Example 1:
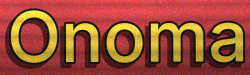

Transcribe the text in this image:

Onoma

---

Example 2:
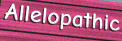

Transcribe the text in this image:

Allelopathic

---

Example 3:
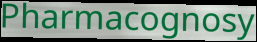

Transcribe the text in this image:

Pharmacognosy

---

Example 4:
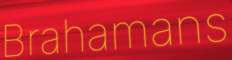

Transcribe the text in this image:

Brahamans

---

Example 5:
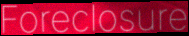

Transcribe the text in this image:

Foreclosure